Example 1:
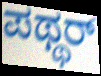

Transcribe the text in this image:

ಪಥ್ಥರ್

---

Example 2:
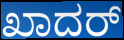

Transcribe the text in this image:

ಖಾದರ್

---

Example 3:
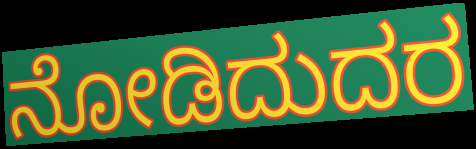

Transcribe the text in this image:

ನೋಡಿದುದರ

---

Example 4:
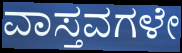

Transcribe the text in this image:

ವಾಸ್ತವಗಳೇ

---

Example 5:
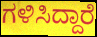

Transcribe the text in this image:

ಗಳಿಸಿದ್ದಾರೆ